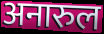
अनारुल